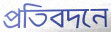
প্রতিবদনে